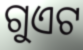
ଗୁଏଟ